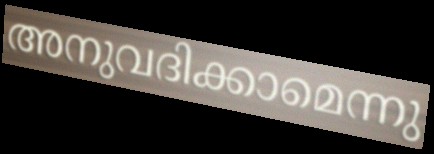
അനുവദിക്കാമെന്നു